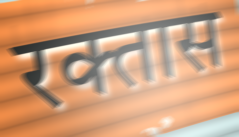
रक्तास